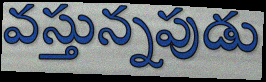
వస్తున్నపుడు